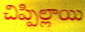
చిప్పిల్లాయి